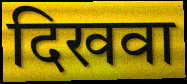
दिखवा